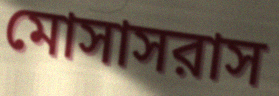
মোসাসরাস